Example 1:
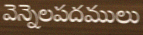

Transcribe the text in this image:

వెన్నెలపదములు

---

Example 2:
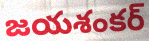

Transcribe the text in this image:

జయశంకర్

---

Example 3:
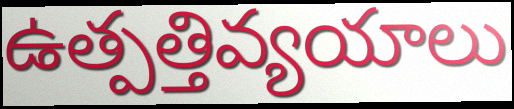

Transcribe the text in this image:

ఉత్పత్తివ్యయాలు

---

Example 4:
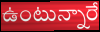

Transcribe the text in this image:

ఉంటున్నారే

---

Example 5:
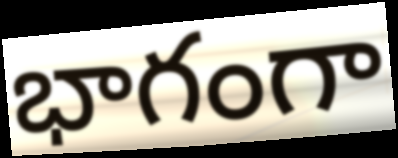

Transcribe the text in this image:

భాగంగా